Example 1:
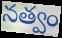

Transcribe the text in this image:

నత్వం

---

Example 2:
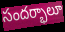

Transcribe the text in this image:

సందర్భాలూ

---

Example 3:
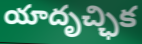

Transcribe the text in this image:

యాదృచ్ఛిక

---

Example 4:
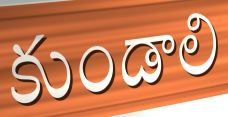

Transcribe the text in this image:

కుండాలి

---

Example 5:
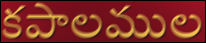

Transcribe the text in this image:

కపాలముల